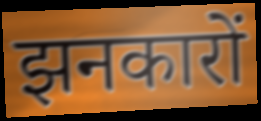
झनकारों